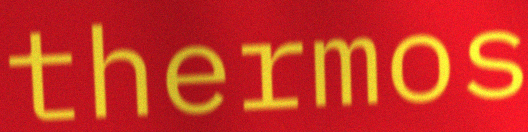
thermos